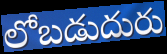
లోబడుదురు